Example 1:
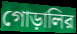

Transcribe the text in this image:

গোড়ালির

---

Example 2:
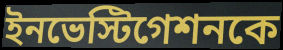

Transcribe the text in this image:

ইনভেস্টিগেশনকে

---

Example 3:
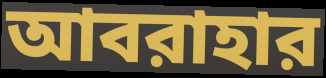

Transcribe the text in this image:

আবরাহার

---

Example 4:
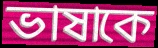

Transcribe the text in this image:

ভাষাকে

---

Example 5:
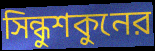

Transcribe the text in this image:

সিন্ধুশকুনের